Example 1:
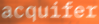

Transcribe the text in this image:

acquifer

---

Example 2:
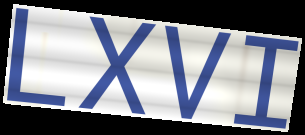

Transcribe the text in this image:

LXVI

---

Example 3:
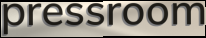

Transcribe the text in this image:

pressroom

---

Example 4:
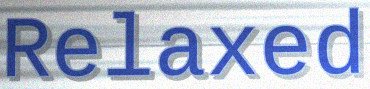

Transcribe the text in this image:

Relaxed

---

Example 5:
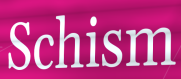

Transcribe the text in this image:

Schism